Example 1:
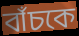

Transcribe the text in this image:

বাঁচকে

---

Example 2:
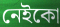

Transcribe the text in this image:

নেইকো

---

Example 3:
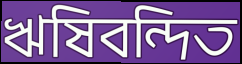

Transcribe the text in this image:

ঋষিবন্দিত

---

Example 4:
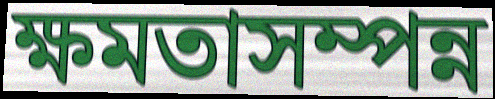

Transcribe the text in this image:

ক্ষমতাসম্পন্ন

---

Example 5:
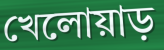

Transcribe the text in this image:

খেলোয়াড়